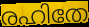
രഹിതേ